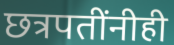
छत्रपतींनीही